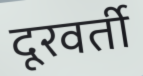
दूरवर्ती